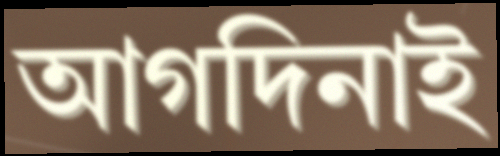
আগদিনাই